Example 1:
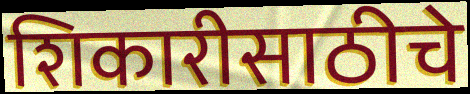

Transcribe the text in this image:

शिकारीसाठीचे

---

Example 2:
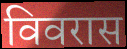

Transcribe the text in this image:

विवरास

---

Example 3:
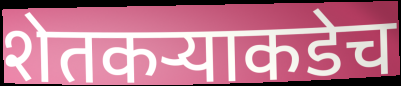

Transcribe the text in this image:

शेतकऱ्याकडेच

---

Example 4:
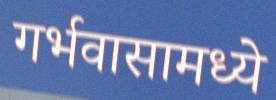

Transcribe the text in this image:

गर्भवासामध्ये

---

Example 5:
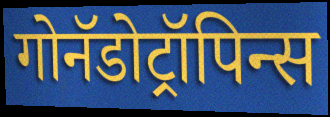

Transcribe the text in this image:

गोनॅडोट्रॉपिन्स